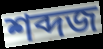
শব্দজ